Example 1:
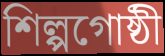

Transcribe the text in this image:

শিল্পগোষ্ঠী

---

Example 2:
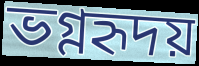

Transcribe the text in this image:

ভগ্নহৃদয়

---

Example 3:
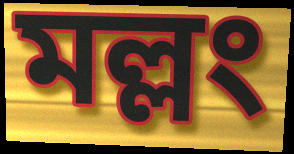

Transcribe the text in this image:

মল্লং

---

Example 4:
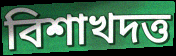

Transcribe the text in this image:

বিশাখদত্ত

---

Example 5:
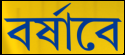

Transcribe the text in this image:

বর্ষাবে